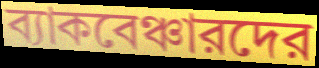
ব্যাকবেঞ্চারদের